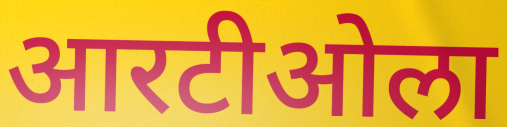
आरटीओला